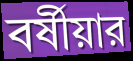
বর্ষীয়ার